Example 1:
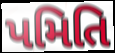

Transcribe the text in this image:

પમિતિ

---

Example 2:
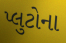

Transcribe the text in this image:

પ્લુટોના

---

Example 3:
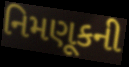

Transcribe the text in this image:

નિમણૂકની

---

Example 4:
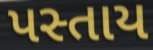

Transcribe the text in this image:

પસ્તાય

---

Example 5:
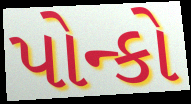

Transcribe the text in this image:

પોન્કો